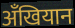
अँखियान